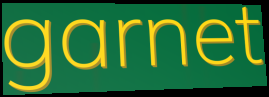
garnet